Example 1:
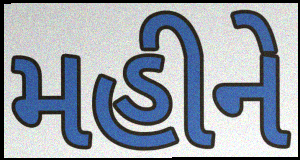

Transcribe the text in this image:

મહીને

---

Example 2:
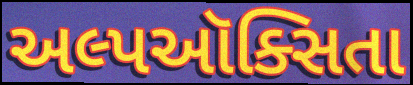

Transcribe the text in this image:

અલ્પઑક્સિતા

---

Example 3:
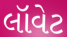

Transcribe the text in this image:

લૉવેટ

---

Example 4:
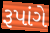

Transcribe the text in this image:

રૂપાંગે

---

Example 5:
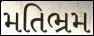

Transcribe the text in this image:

મતિભ્રમ